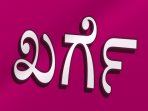
ಖರ್ಗೆ